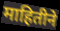
माहितीने